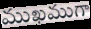
ముఖముగా